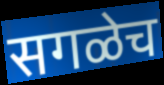
सगळेच